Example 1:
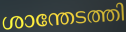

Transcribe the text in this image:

ശാന്തേടത്തി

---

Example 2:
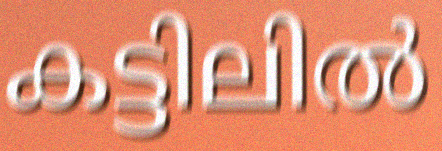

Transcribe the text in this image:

കട്ടിലിൽ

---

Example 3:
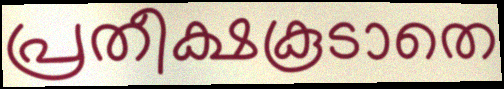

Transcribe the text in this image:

പ്രതീക്ഷകൂടാതെ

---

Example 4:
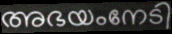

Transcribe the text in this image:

അഭയംനേടി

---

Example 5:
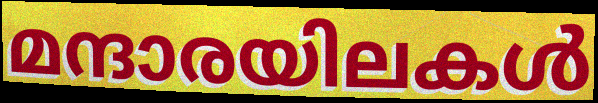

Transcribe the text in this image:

മന്ദാരയിലകൾ